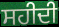
ਸਹੀਦੀ